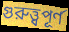
গুৰুত্ত্বপূৰ্ণ